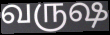
வருஷ